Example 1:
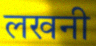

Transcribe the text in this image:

लखनी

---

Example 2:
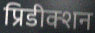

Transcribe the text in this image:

प्रिडीक्शन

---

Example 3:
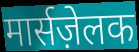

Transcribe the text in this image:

मार्सज़ेलक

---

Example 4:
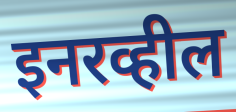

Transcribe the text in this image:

इनरव्हील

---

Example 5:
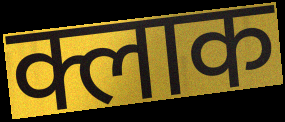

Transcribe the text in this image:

क्लाक